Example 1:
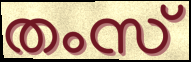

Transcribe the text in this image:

തംസ്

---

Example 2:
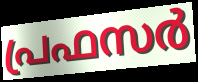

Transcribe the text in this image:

പ്രഫസർ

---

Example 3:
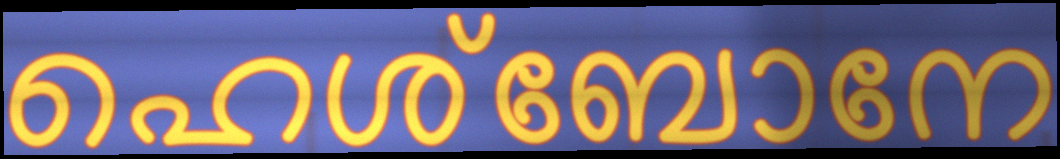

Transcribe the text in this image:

ഹെശ്ബോനേ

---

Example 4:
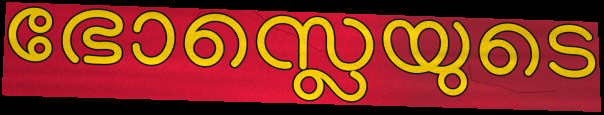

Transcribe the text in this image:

ഭോസ്ലെയുടെ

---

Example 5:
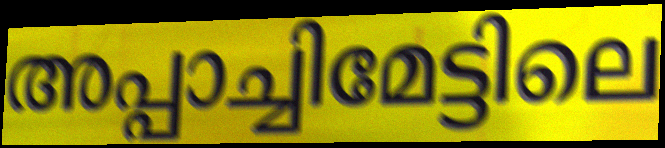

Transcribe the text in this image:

അപ്പാച്ചിമേട്ടിലെ